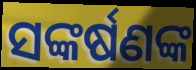
ସଙ୍କର୍ଷଣଙ୍କ